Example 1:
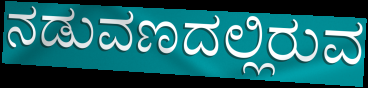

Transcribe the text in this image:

ನಡುವಣದಲ್ಲಿರುವ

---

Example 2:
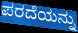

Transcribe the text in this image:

ಪರದೆಯನ್ನು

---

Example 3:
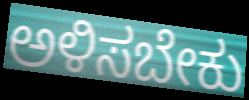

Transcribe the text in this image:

ಅಳಿಸಬೇಕು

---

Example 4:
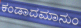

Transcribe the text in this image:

ಕಂಡಾದಮಾನುಂ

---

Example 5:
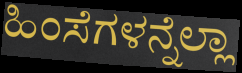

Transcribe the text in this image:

ಹಿಂಸೆಗಳನ್ನೆಲ್ಲಾ